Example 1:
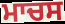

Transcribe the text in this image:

ਮਾਚਸ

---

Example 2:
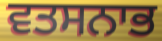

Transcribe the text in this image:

ਵਤਸਨਾਭ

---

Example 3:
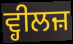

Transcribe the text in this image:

ਵ੍ਹੀਲਜ਼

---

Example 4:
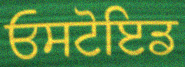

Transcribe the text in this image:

ਓਸਟੋਇਡ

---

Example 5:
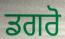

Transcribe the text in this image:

ਡਗਰੋ